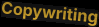
Copywriting